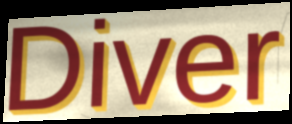
Diver